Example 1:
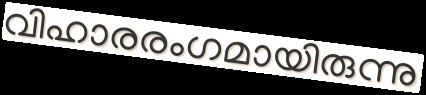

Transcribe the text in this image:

വിഹാരരംഗമായിരുന്നു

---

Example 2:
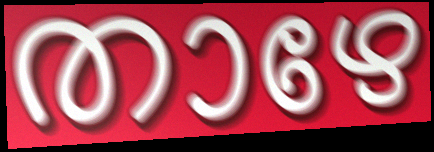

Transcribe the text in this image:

താഴേ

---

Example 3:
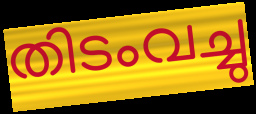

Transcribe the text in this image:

തിടംവച്ചു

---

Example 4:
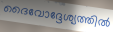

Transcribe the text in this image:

ദൈവോദ്ദേശ്യത്തിൽ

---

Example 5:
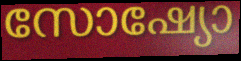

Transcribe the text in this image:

സോഷ്യോ